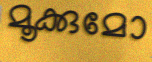
മൂക്കുമോ